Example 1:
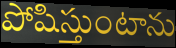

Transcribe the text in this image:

పోషిస్తుంటాను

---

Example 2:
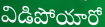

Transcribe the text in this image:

విడిపోయారో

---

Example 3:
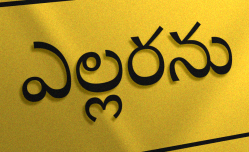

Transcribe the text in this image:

ఎల్లరను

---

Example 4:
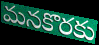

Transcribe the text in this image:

మనకొరకు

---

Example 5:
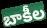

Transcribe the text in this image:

బాకీల